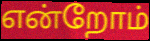
என்றோம்